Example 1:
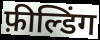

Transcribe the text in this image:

फ़ील्डिंग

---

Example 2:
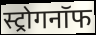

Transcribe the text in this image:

स्ट्रोगनॉफ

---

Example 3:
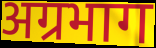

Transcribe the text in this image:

अग्रभाग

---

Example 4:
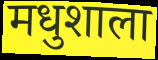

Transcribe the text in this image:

मधुशाला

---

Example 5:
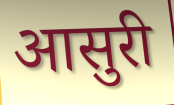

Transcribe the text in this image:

आसुरी